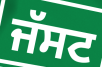
ਜੱਸਟ